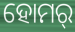
ହୋମର୍